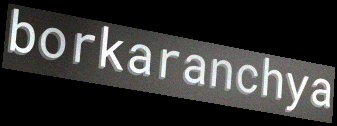
borkaranchya